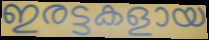
ഇരട്ടകളായ